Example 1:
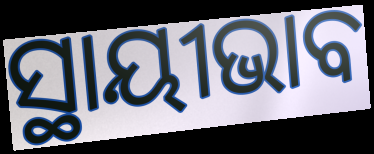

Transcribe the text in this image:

ସ୍ଥାୟୀଭାବ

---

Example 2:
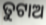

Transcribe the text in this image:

ତୁଟାଅ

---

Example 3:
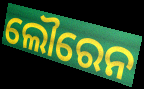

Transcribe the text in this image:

ଲୌରେନ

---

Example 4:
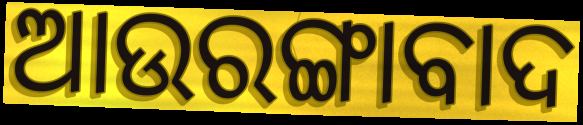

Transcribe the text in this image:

ଆଉରଙ୍ଗାବାଦ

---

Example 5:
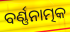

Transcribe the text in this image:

ବର୍ଣ୍ଣନାତ୍ମକ